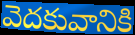
వెదకువానికి